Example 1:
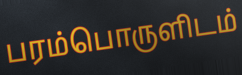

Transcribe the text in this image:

பரம்பொருளிடம்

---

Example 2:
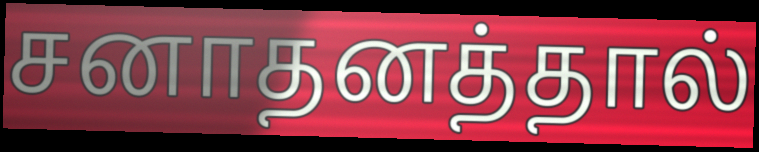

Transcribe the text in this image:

சனாதனத்தால்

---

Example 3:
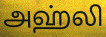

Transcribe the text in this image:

அஹ்லி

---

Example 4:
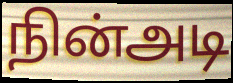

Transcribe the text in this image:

நின்அடி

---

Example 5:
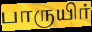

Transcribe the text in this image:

பாருயிர்